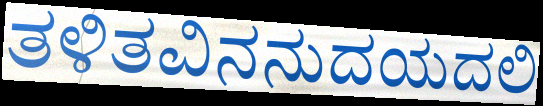
ತಳಿತವಿನನುದಯದಲಿ